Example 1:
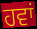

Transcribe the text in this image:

ਹਵਾਂ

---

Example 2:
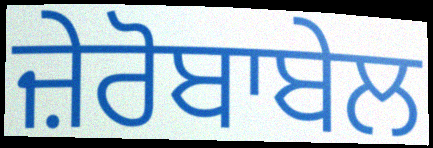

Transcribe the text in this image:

ਜ਼ੇਰੋਬਾਬੇਲ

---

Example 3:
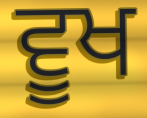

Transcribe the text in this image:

ਵੂਖ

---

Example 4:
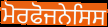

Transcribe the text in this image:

ਮੋਰਫੋਜਨੇਸਿਸ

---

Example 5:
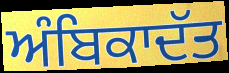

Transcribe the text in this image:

ਅੰਬਿਕਾਦੱਤ